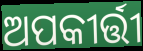
ଅପକୀର୍ତ୍ତୀ